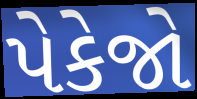
પેકેજો